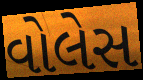
વોલેસ